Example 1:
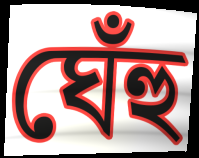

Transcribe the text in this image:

ঘেঁহু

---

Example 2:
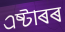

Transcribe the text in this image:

এষ্টাৰৰ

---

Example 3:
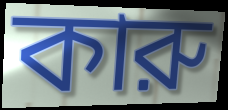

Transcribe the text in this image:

কাৰু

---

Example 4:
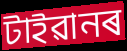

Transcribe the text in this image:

টাইৱানৰ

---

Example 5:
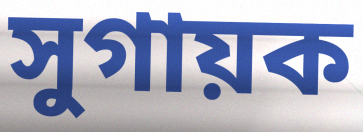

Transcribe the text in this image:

সুগায়ক